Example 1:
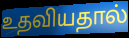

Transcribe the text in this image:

உதவியதால்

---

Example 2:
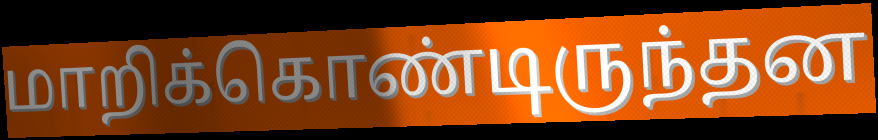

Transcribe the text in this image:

மாறிக்கொண்டிருந்தன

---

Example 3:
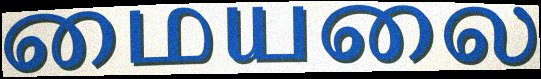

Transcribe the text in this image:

மையலை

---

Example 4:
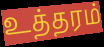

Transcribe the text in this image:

உத்தரம்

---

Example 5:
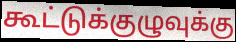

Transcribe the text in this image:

கூட்டுக்குழுவுக்கு